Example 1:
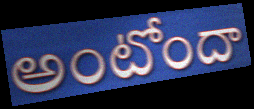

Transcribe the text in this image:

అంటోందా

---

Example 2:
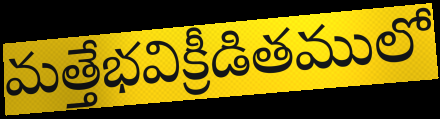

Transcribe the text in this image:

మత్తేభవిక్రీడితములో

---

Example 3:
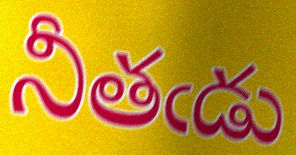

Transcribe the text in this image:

నీతఁడు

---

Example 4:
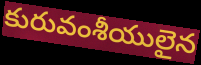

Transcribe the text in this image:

కురువంశీయులైన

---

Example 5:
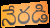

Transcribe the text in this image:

నేరడి